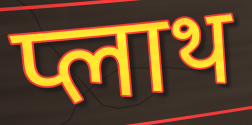
प्लाथ